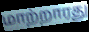
மாற்றாரது